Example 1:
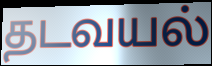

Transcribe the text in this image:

தடவயல்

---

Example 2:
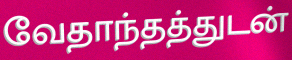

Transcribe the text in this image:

வேதாந்தத்துடன்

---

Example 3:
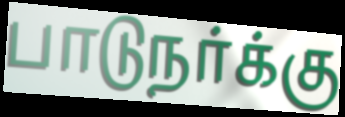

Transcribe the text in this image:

பாடுநர்க்கு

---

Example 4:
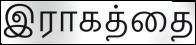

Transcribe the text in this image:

இராகத்தை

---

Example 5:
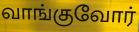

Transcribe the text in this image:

வாங்குவோர்